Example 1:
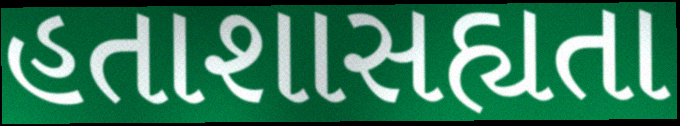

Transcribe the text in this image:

હતાશાસહ્યતા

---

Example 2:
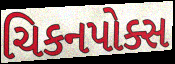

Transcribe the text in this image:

ચિકનપોક્સ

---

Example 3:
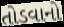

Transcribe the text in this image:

તોડવાનો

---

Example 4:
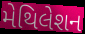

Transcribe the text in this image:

મેથિલેશન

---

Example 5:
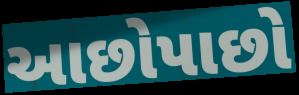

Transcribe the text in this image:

આછોપાછો